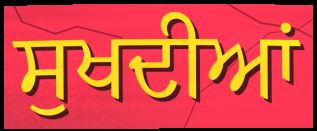
ਸੁਖਦੀਆਂ